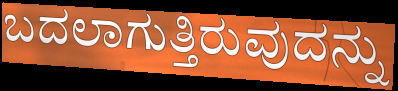
ಬದಲಾಗುತ್ತಿರುವುದನ್ನು